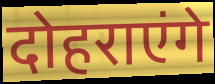
दोहराएंगे